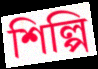
শিল্পি